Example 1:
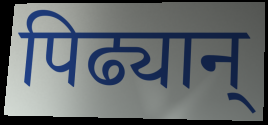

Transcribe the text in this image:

पिढ्यान्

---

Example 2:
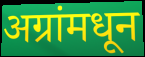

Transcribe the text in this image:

अग्रांमधून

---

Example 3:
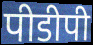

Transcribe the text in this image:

पीडीपी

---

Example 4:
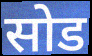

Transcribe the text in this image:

सोड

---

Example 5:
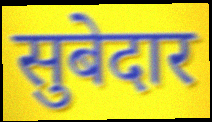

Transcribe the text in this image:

सुबेदार